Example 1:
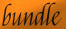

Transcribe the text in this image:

bundle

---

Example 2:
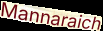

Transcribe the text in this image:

Mannaraich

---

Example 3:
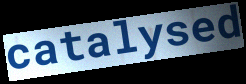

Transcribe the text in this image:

catalysed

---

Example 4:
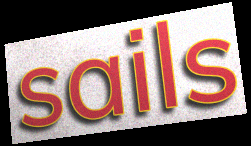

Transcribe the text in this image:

sails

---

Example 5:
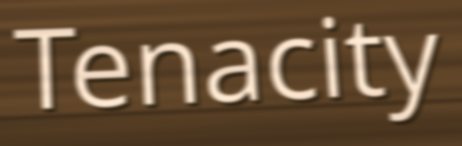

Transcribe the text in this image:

Tenacity